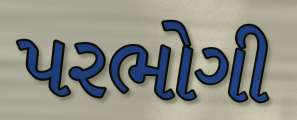
પરભોગી